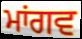
ਮਾਂਗਵ